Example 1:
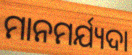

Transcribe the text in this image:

ମାନମର୍ଯ୍ୟଦା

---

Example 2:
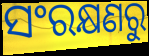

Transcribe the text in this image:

ସଂରକ୍ଷଣରୁ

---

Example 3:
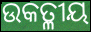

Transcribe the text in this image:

ଉକତ୍ଳୀୟ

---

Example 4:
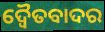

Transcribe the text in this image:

ଦ୍ୱୈତବାଦର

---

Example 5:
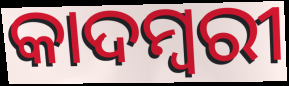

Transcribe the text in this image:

କାଦମ୍ବରୀ